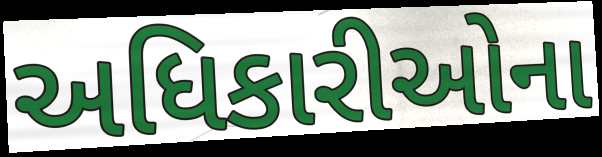
અધિકારીઓના